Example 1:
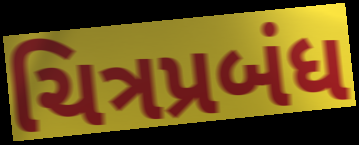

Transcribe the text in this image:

ચિત્રપ્રબંધ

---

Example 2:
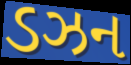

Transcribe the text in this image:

ડઝન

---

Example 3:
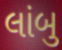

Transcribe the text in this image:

લાંબુ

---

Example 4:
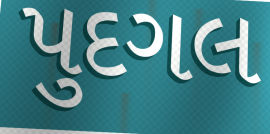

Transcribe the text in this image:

પુદગલ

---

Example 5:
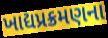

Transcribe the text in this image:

ખાદ્યપ્રક્રમણના